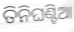
ତିନିଘଣ୍ଟିଆ